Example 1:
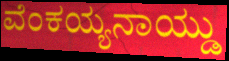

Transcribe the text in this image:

ವೆಂಕಯ್ಯನಾಯ್ಡು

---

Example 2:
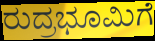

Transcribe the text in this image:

ರುದ್ರಭೂಮಿಗೆ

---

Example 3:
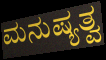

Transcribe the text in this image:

ಮನುಷ್ಯತ್ವ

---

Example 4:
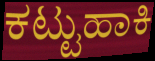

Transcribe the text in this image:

ಕಟ್ಟುಹಾಕಿ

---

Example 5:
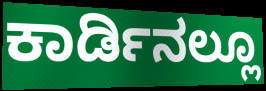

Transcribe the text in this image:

ಕಾರ್ಡಿನಲ್ಲೂ